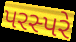
પરસ્પરે